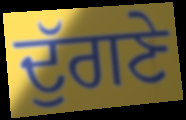
ਦੁੱਗਣੇ